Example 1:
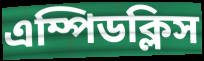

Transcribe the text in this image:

এম্পিডক্লিস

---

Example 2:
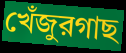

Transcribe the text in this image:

খেঁজুরগাছ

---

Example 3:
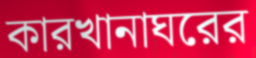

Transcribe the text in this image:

কারখানাঘরের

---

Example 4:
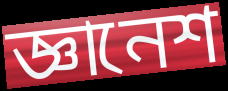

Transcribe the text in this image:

জ্ঞানেশ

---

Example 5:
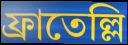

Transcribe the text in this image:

ফ্রাতেল্লি